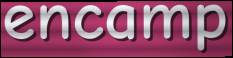
encamp